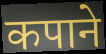
कपाने